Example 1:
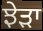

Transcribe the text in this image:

ਝੇੜਾ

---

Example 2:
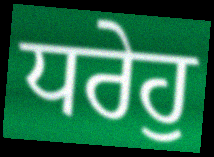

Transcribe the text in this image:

ਧਰੇਹੁ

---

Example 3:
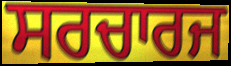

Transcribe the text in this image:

ਸਰਚਾਰਜ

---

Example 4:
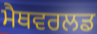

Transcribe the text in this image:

ਮੈਥਵਰਲਡ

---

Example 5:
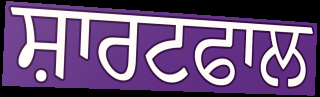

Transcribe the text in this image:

ਸ਼ਾਰਟਫਾਲ